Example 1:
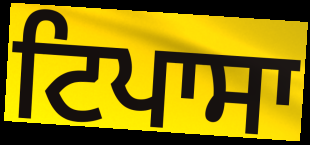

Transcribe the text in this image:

ਟਿਪਾਸਾ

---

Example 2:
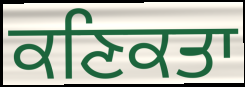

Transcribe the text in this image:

ਕਣਿਕਤਾ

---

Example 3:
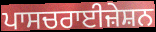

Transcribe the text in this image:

ਪਾਸਚਰਾਈਜ਼ੇਸ਼ਨ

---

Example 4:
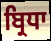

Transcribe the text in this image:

ਬ੍ਰਿਧਾ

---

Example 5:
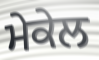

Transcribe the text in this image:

ਮੇਕੇਲ